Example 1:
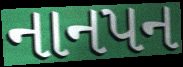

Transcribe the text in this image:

નાનપન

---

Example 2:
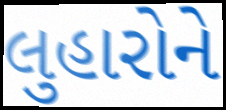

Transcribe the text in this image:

લુહારોને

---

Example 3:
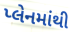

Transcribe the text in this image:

પ્લેનમાંથી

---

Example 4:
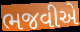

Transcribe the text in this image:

ભજવીએ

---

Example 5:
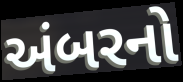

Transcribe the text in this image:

અંબરનો